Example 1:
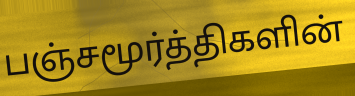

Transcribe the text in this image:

பஞ்சமூர்த்திகளின்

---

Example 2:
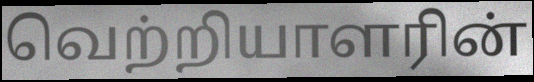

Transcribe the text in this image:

வெற்றியாளரின்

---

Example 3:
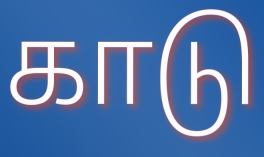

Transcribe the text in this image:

காடு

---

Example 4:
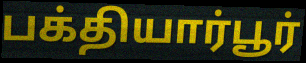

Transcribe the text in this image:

பக்தியார்பூர்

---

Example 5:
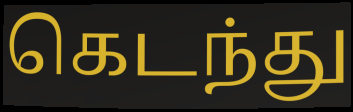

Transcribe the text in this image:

கெடந்து